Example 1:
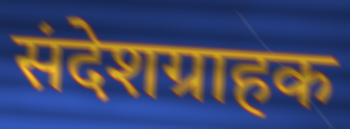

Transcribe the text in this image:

संदेशग्राहक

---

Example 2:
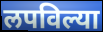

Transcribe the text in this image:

लपविल्या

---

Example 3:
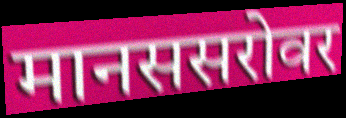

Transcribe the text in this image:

मानससरोवर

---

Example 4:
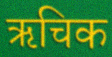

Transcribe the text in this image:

ऋचिक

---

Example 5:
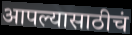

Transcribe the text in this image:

आपल्यासाठीचं